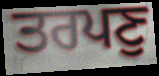
ਤਰਪਣੁ